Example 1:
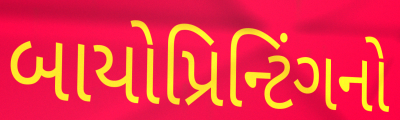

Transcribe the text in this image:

બાયોપ્રિન્ટિંગનો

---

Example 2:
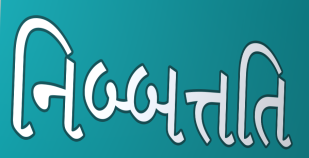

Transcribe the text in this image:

નિબ્બત્તતિ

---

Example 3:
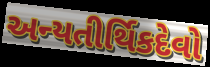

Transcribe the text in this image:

અન્યતીર્થિકદેવો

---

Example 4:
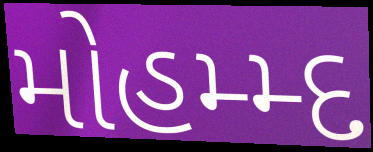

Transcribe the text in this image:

મોહમ્મ્દ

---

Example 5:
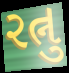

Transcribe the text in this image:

રત્નુ